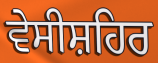
ਵੇਸੀਸ਼ਹਿਰ